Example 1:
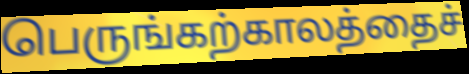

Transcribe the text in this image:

பெருங்கற்காலத்தைச்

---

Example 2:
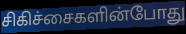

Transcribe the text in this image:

சிகிச்சைகளின்போது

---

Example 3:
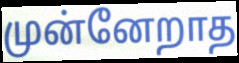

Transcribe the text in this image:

முன்னேறாத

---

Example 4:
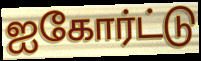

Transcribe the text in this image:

ஐகோர்ட்டு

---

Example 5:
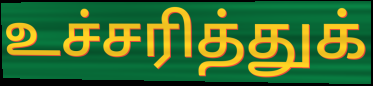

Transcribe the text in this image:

உச்சரித்துக்